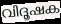
വിദൂഷക